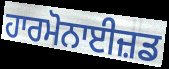
ਹਾਰਮੋਨਾਈਜ਼ਡ